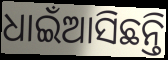
ଧାଇଁଆସିଛନ୍ତି